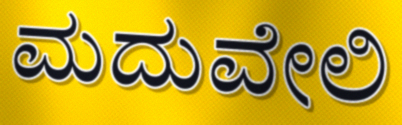
ಮದುವೇಲಿ